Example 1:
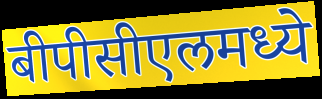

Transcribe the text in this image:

बीपीसीएलमध्ये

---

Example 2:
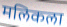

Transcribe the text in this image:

मलिकला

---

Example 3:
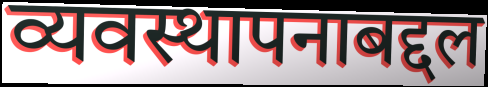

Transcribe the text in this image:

व्यवस्थापनाबद्दल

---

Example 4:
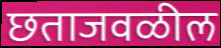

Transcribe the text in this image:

छताजवळील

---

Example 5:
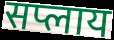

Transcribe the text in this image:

सप्लाय